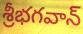
శ్రీభగవాన్